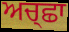
ਅਚ੍ਛਾ